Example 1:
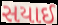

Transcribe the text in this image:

સયાઈ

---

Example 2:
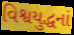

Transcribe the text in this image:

વિશ્વયુદ્ધનાં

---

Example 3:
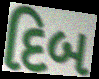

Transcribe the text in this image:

દિબ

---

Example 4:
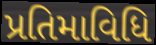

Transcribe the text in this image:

પ્રતિમાવિધિ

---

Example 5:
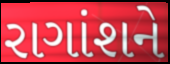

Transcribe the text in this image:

રાગાંશને